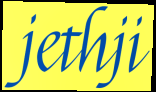
jethji